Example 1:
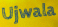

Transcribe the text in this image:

Ujwala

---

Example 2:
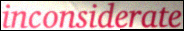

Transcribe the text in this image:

inconsiderate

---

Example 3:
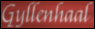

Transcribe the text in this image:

Gyllenhaal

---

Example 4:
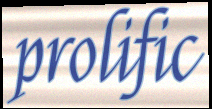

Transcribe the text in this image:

prolific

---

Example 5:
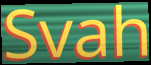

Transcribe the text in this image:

Svah